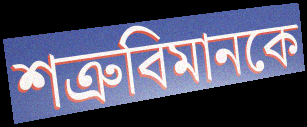
শত্রুবিমানকে